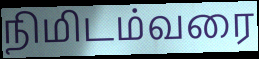
நிமிடம்வரை